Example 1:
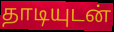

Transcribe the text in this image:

தாடியுடன்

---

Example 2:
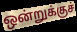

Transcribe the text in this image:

ஒன்றுக்குச்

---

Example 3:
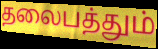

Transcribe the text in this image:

தலைபத்தும்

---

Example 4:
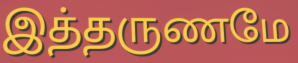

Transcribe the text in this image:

இத்தருணமே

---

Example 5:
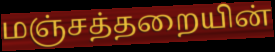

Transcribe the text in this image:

மஞ்சத்தறையின்